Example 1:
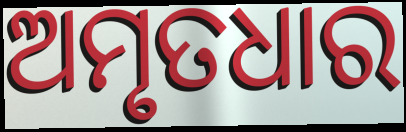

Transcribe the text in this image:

ଅମୃତଧାର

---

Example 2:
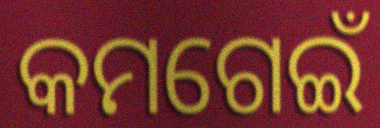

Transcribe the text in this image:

କମଗେଇଁ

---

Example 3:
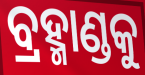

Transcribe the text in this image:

ବ୍ରହ୍ମାଣ୍ଡକୁ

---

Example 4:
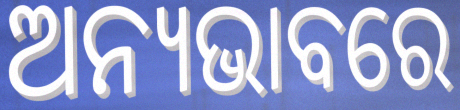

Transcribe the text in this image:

ଅନ୍ୟଭାବରେ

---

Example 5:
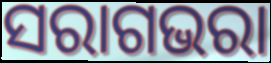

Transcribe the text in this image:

ସରାଗଭରା